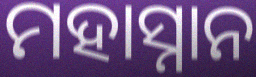
ମହାସ୍ନାନ